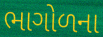
ભાગોળના